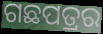
ଗଛପତ୍ରର